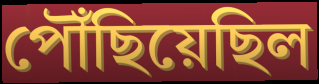
পৌঁছিয়েছিল